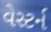
વેસ્ટર્ન